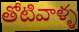
తోటివాళ్ళ